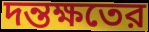
দন্তক্ষতের